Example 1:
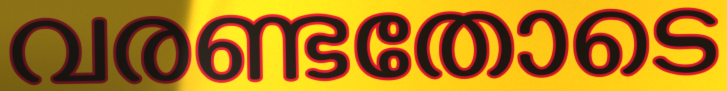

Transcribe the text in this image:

വരണ്ടതോടെ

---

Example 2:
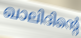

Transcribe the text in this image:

ഖാലിദിന്റെ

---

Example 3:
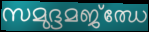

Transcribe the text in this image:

സമുദ്ദമജ്ഝേ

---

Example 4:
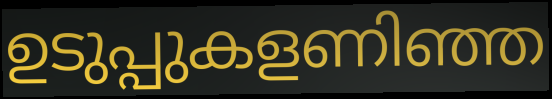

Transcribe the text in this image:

ഉടുപ്പുകളണിഞ്ഞ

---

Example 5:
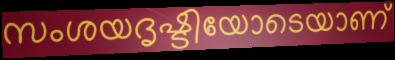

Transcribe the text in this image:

സംശയദൃഷ്ടിയോടെയാണ്